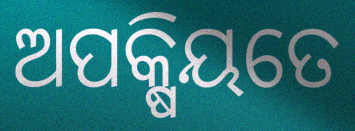
ଅପକ୍ଷିୟତେ